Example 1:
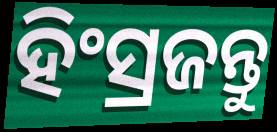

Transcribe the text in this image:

ହିଂସ୍ରଜନ୍ତୁ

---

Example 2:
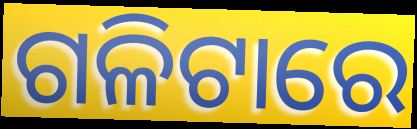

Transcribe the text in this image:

ଗଳିଟାରେ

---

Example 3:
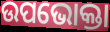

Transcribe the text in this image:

ଉପଭୋକ୍ତା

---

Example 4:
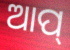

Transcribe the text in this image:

ଆପ୍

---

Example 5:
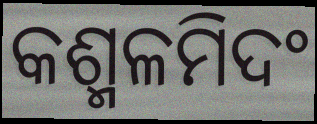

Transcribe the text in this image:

କଶ୍ମଳମିଦଂ